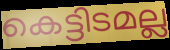
കെട്ടിടമല്ല